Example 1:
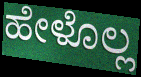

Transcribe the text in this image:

ಹೇಳೊಲ್ಲ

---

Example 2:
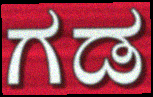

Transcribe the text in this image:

ಗಡ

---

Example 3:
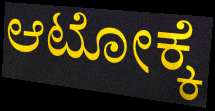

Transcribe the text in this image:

ಆಟೋಕ್ಕೆ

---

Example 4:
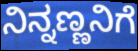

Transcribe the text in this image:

ನಿನ್ನಣ್ಣನಿಗೆ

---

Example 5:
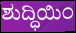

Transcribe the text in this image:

ಶುದ್ಧಿಯಿಂ